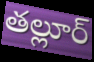
తల్లూర్